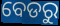
ବେଡରୁ